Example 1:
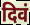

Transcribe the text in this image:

दिवं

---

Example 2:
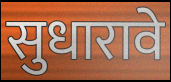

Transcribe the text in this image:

सुधारावे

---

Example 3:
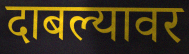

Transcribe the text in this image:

दाबल्यावर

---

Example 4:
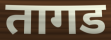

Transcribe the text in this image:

तागड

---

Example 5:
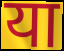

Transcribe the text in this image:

या